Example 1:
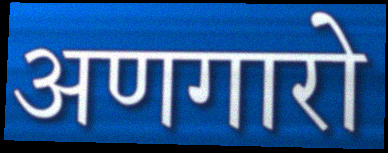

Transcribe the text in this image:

अणगारो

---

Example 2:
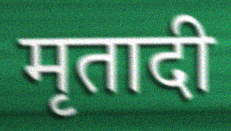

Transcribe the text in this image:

मृतादी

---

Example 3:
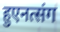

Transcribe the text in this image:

हुएनत्संग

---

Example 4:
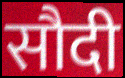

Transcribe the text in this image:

सौदी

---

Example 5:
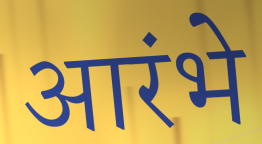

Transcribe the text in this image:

आरंभे